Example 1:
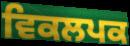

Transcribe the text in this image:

ਵਿਕਲਪਕ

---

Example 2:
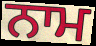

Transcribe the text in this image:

ਨਾਮ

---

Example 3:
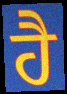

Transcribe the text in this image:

ਹੈ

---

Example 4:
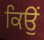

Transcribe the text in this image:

ਕਿਉਂ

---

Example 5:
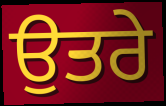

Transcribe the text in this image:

ਉਤਰੇ